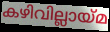
കഴിവില്ലായ്മ